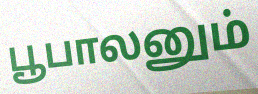
பூபாலனும்